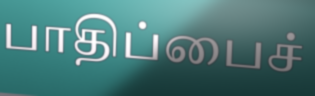
பாதிப்பைச்